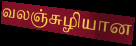
வலஞ்சுழியான